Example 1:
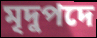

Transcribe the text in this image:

মৃদুপদে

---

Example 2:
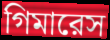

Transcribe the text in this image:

গিমারেস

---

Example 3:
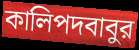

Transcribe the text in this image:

কালিপদবাবুর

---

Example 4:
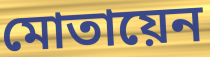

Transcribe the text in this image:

মোতায়েন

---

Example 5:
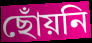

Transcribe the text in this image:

ছোঁয়নি